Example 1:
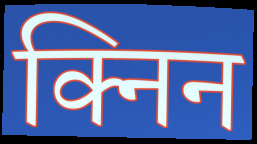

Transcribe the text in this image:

क्निन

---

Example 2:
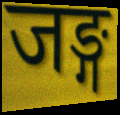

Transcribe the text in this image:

जङ्ग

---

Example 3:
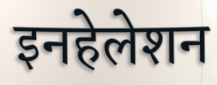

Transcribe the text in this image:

इनहेलेशन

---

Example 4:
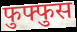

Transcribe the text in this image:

फुफ्फुस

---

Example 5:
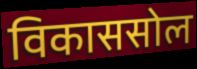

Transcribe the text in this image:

विकाससोल